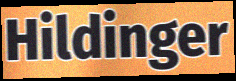
Hildinger